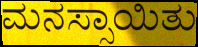
ಮನಸ್ಸಾಯಿತು